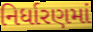
નિર્ધારણમાં